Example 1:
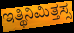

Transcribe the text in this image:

ಇತ್ಥಿನಿಮಿತ್ತಸ್ಸ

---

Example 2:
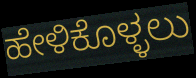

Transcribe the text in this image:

ಹೇಳಿಕೊಳ್ಳಲು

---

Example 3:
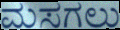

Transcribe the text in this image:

ಮಸಗಲು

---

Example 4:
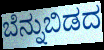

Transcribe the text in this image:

ಬೆನ್ನುಬಿಡದ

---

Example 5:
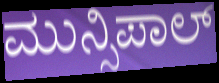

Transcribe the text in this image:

ಮುನ್ಸಿಪಾಲ್